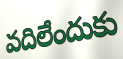
వదిలేందుకు